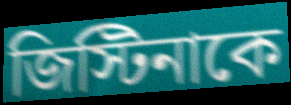
জিস্টিনাকে